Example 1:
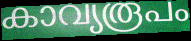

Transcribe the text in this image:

കാവ്യരൂപം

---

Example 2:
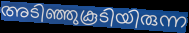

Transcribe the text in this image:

അടിഞ്ഞുകൂടിയിരുന്ന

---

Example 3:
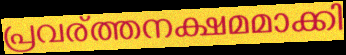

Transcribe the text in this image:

പ്രവര്ത്തനക്ഷമമാക്കി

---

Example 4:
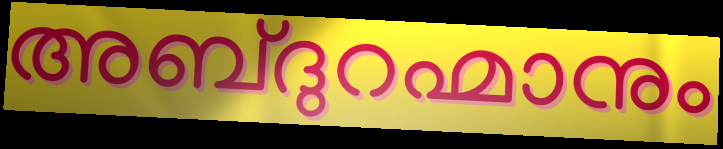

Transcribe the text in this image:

അബ്ദുറഹ്മാനും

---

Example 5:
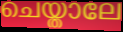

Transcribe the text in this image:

ചെയ്താലേ